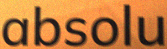
absolu